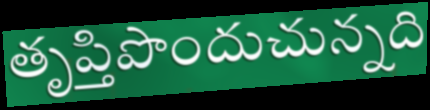
తృప్తిపొందుచున్నది